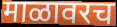
माळावरच